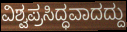
ವಿಶ್ವಪ್ರಸಿದ್ಧವಾದದ್ದು